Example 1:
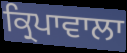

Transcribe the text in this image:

ਕ੍ਰਿਪਾਵਾਲਾ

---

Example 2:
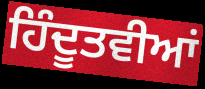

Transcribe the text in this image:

ਹਿੰਦੂਤਵੀਆਂ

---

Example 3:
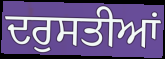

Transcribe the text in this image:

ਦਰੁਸਤੀਆਂ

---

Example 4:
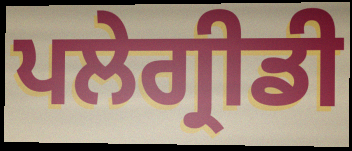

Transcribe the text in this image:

ਪਲੇਗ੍ਰੀਡੀ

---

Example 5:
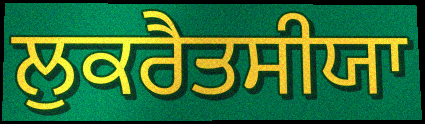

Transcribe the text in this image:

ਲੁਕਰੈਤਸੀਯਾ